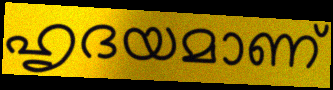
ഹൃദയമാണ്